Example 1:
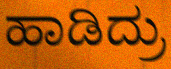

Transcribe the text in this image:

ಹಾಡಿದ್ರು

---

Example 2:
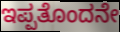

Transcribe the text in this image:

ಇಪ್ಪತೊಂದನೇ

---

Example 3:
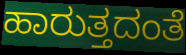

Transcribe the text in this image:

ಹಾರುತ್ತದಂತೆ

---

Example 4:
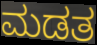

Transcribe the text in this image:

ಮಡತ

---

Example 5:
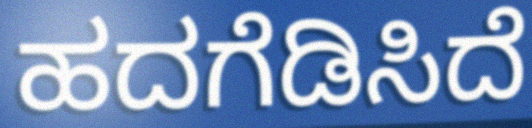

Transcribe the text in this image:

ಹದಗೆಡಿಸಿದೆ